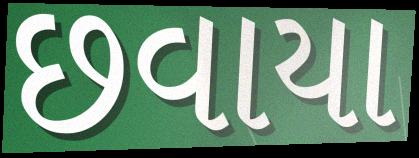
છવાયા